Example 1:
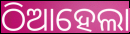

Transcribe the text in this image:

ଠିଆହେଲା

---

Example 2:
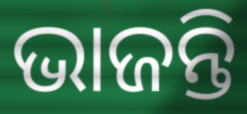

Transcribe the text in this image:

ଭାଜନ୍ତି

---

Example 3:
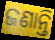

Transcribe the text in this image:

ଜଣାନ୍ତି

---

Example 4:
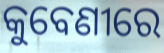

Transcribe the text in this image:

କୁବେଣୀରେ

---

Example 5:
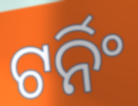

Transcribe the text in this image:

ଟର୍ନିଂ